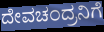
ದೇವಚಂದ್ರನಿಗೆ